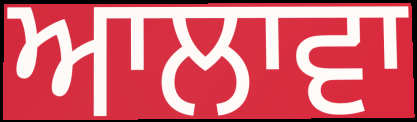
ਆਲਾਵਾ